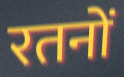
रतनों